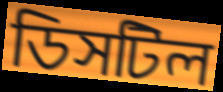
ডিসটিল